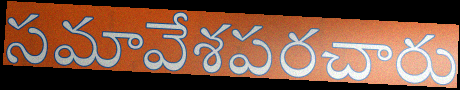
సమావేశపరచారు